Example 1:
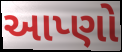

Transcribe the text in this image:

આપ્ણો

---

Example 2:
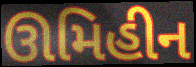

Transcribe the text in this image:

ઊમિહીન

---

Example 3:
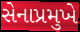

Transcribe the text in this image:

સેનાપ્રમુખે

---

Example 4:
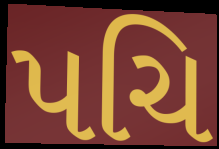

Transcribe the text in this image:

પચિ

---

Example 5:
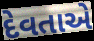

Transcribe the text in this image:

દેવતાએ